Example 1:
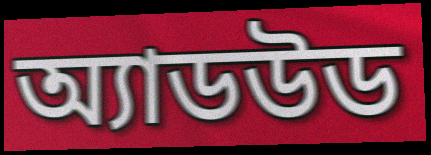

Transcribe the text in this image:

অ্যাডউড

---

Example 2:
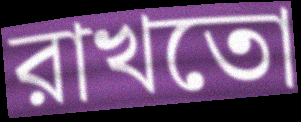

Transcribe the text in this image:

রাখতো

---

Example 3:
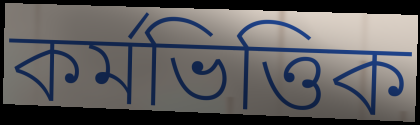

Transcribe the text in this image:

কর্মভিত্তিক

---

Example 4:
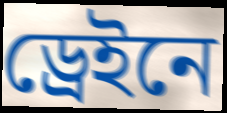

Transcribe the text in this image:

ড্রেইনে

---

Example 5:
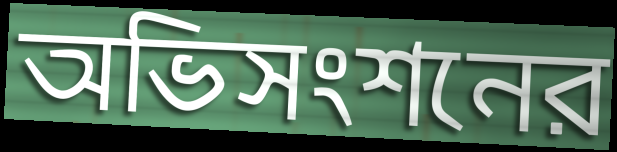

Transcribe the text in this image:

অভিসংশনের